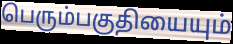
பெரும்பகுதியையும்